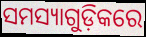
ସମସ୍ୟାଗୁଡ଼ିକରେ